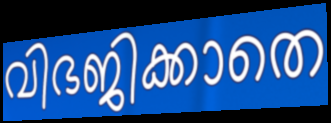
വിഭജിക്കാതെ